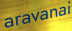
aravanai